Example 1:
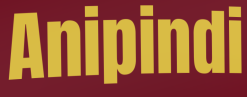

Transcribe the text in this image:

Anipindi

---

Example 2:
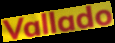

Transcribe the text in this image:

Vallado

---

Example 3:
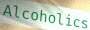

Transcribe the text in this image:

Alcoholics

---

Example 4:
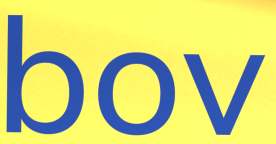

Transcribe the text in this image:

bov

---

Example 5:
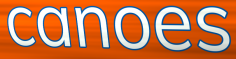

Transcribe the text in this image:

canoes